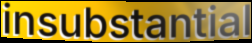
insubstantial